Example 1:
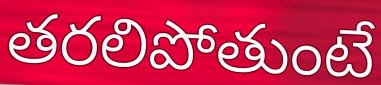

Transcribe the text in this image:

తరలిపోతుంటే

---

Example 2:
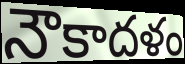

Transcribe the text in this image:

నౌకాదళం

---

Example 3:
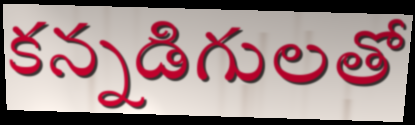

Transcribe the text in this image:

కన్నడిగులతో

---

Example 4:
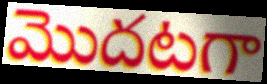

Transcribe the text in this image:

మొదటగా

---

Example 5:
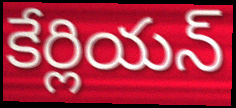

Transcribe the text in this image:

కేర్లియన్